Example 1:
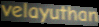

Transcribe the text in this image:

velayuthan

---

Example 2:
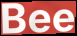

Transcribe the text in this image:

Bee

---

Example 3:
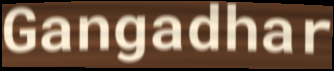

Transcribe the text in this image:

Gangadhar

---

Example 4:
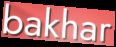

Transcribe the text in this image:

bakhar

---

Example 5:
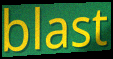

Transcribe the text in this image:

blast